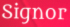
Signor